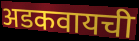
अडकवायची